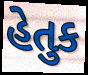
હેતુક